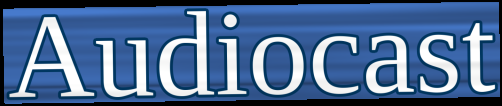
Audiocast